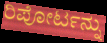
ರಿಪೋರ್ಟನ್ನು